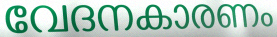
വേദനകാരണം